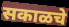
सकाळचे